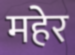
महेर